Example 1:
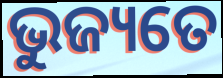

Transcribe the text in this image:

ଭୁଜ୍ୟତେ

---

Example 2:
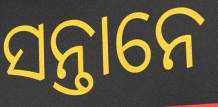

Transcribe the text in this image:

ସନ୍ତାନେ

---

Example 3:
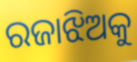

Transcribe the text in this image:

ରଜାଝିଅକୁ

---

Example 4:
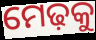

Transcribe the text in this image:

ମେଢ଼କୁ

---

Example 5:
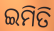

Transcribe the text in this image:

ଇମିତି